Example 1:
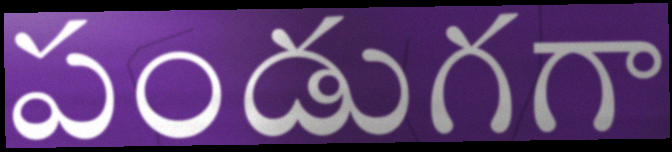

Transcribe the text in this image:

పండుగగా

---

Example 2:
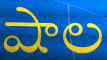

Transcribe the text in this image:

షాల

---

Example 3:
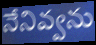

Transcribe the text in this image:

నేనివ్వను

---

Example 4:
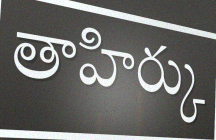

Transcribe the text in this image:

తాహిర్కు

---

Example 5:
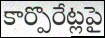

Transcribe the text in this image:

కార్పొరేట్లపై